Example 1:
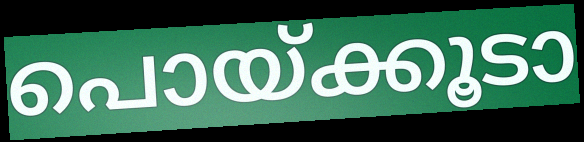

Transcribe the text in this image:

പൊയ്ക്കൂടാ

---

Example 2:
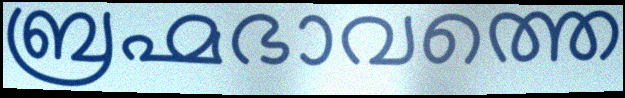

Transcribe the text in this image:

ബ്രഹ്മഭാവത്തെ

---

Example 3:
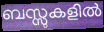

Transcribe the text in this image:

ബസ്സുകളിൽ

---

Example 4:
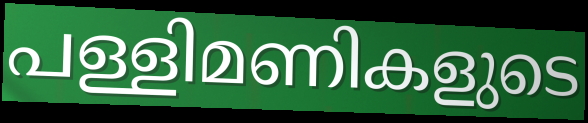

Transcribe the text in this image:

പള്ളിമണികളുടെ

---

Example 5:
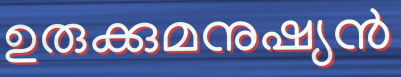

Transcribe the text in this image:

ഉരുക്കുമനുഷ്യൻ